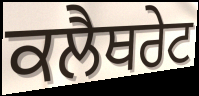
ਕਲੈਥਰੇਟ